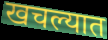
खचल्यात